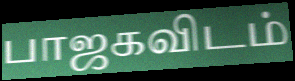
பாஜகவிடம்